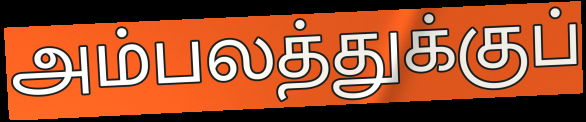
அம்பலத்துக்குப்